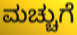
ಮಚ್ಚುಗೆ